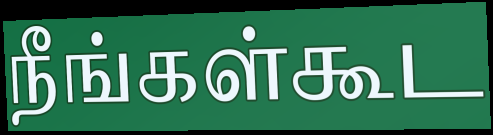
நீங்கள்கூட